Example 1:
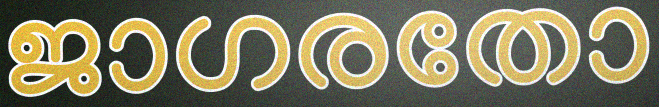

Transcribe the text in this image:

ജാഗരതോ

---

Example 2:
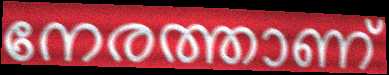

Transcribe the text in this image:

നേരത്താണ്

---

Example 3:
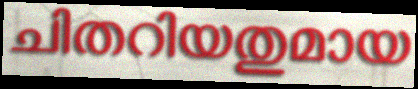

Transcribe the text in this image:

ചിതറിയതുമായ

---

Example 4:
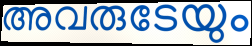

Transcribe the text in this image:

അവരുടേയും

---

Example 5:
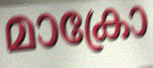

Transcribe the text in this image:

മാക്രോ